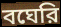
বঘেরি